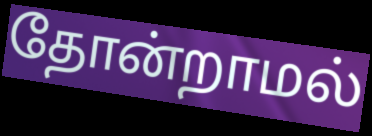
தோன்றாமல்